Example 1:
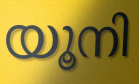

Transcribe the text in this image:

യൂനി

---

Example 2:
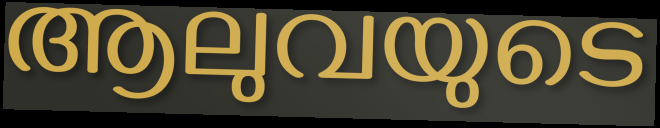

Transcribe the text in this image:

ആലുവയുടെ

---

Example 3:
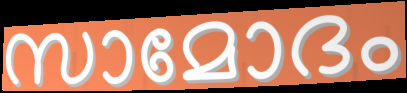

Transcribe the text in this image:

സാമോദം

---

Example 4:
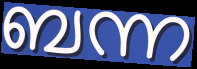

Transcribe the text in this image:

ബന്ന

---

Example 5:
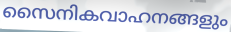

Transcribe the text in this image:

സൈനികവാഹനങ്ങളും